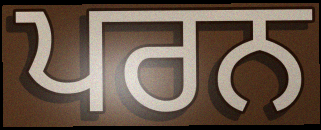
ਪਰਨ